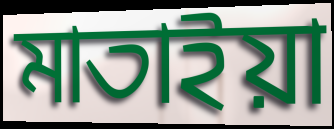
মাতাইয়া